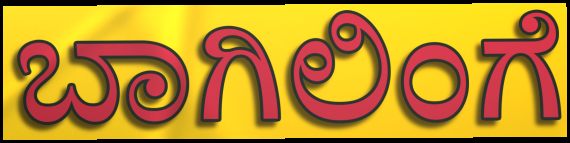
ಬಾಗಿಲಿಂಗೆ